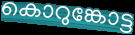
കൊറുങ്കോട്ട